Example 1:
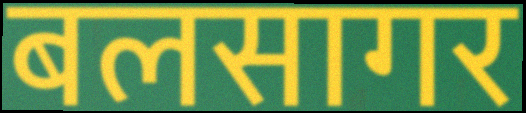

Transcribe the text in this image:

बलसागर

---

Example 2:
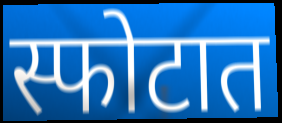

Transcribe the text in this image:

स्फोटात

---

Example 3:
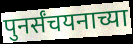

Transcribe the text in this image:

पुनर्संचयनाच्या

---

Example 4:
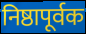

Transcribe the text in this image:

निष्ठापूर्वक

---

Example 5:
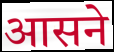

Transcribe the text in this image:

आसने